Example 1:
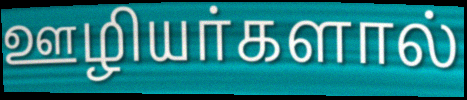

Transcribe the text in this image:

ஊழியர்களால்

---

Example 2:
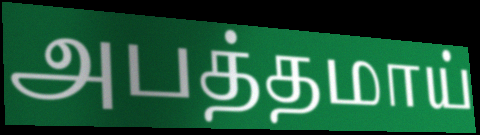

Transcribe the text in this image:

அபத்தமாய்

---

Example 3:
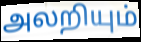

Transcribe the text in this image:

அலறியும்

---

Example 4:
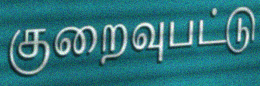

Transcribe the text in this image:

குறைவுபட்டு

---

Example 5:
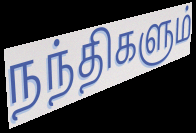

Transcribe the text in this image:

நந்திகளும்